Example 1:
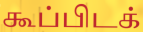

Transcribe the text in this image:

கூப்பிடக்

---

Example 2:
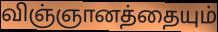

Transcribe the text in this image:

விஞ்ஞானத்தையும்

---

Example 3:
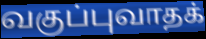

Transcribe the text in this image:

வகுப்புவாதக்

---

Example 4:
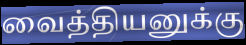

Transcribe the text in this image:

வைத்தியனுக்கு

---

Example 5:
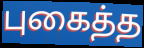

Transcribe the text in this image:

புகைத்த